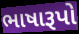
ભાષારૂપો